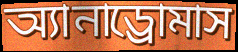
অ্যানাড্রোমাস